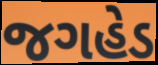
જગહેડ